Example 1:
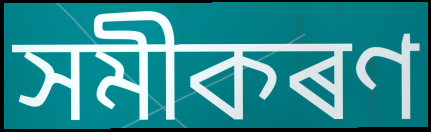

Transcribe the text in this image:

সমীকৰণ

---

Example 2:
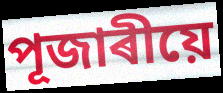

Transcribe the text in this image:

পূজাৰীয়ে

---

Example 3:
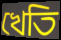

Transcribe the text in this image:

খেতি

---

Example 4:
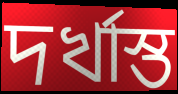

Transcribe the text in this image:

দৰ্খাস্ত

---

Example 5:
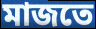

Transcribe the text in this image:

মাজতে